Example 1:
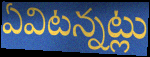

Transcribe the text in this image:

ఏవిటన్నట్లు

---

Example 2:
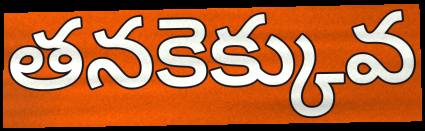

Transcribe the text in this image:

తనకెక్కువ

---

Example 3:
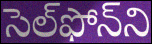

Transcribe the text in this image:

సెల్‌ఫోన్‌ని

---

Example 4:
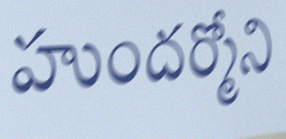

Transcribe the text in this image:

హుందర్మోని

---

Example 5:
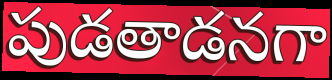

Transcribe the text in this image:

పుడతాడనగా